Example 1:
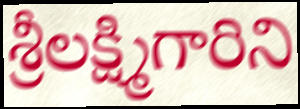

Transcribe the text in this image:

శ్రీలక్ష్మిగారిని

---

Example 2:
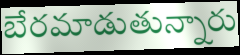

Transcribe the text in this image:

బేరమాడుతున్నారు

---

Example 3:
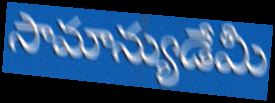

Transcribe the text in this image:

సామాన్యుడేమీ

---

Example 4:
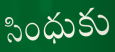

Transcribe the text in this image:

సింధుకు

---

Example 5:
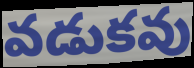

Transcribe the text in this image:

వడుకవు